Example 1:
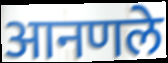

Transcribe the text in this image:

आनणले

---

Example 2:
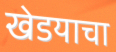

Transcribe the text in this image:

खेडयाचा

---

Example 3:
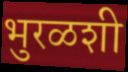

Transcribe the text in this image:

भुरळशी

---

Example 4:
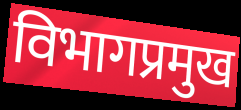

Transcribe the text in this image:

विभागप्रमुख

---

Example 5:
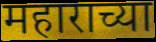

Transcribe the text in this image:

महाराच्या